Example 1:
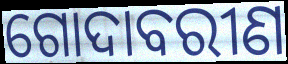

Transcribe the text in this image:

ଗୋଦାବରୀଣ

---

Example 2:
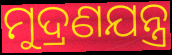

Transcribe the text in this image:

ମୁଦ୍ରଣଯନ୍ତ୍ର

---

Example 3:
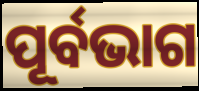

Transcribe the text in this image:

ପୂର୍ବଭାଗ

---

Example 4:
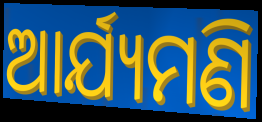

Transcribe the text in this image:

ଆର୍ଯ୍ୟମଣି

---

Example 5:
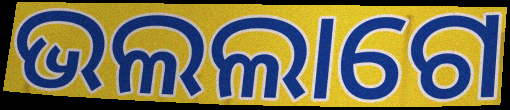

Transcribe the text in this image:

ଭଲଲାଗେ